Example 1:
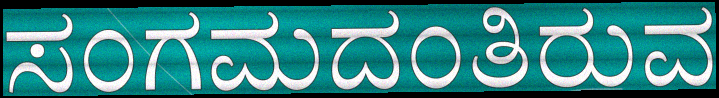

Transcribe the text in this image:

ಸಂಗಮದಂತಿರುವ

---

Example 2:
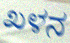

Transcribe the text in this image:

ಖಳನ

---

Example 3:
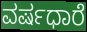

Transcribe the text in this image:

ವರ್ಷಧಾರೆ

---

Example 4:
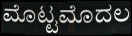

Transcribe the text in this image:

ಮೊಟ್ಟಮೊದಲ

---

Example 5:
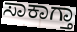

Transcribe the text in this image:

ಸಾಕಾಗ್ತಾ